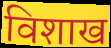
विशाख